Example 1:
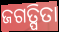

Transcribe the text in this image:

ଜଗତ୍ପିତା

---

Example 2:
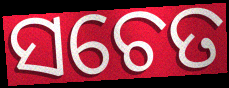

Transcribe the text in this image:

ସଚେତ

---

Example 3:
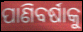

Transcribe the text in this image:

ପାଣିବର୍ଷାକୁ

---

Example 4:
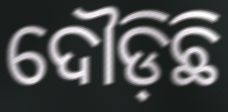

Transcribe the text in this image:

ଦୌଡ଼ିଛି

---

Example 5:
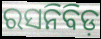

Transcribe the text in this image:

ରସନିବିଡ଼